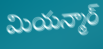
మియన్మార్